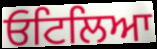
ਓਟਿਲਿਆ